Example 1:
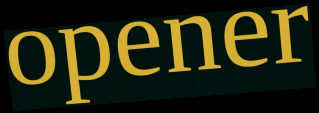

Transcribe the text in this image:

opener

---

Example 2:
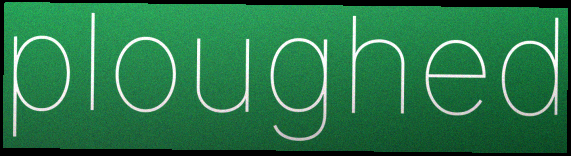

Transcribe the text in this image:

ploughed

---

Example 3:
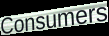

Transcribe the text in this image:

Consumers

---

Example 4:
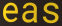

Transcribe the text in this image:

eas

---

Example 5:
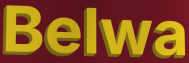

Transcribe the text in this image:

Belwa